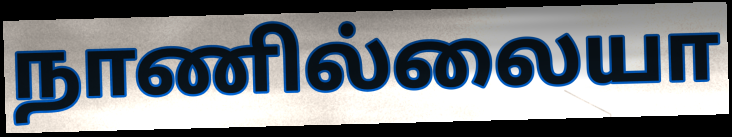
நாணில்லையா